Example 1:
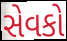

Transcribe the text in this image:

સેવકો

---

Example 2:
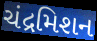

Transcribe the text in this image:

ચંદ્રમિશન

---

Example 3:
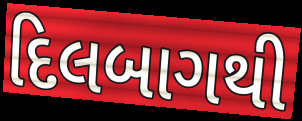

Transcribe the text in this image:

દિલબાગથી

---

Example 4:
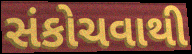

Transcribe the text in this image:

સંકોચવાથી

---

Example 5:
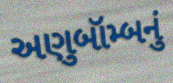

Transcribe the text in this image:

અણુબૉમ્બનું